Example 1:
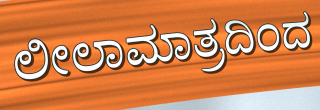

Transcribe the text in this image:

ಲೀಲಾಮಾತ್ರದಿಂದ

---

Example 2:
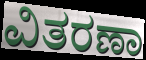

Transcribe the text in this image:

ವಿತರಣಾ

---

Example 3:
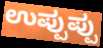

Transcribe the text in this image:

ಉಪ್ಪುಪ್ಪು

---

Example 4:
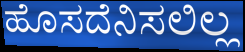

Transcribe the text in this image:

ಹೊಸದೆನಿಸಲಿಲ್ಲ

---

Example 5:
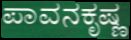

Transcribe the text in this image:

ಪಾವನಕೃಷ್ಣ